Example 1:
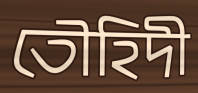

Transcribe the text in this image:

তৌহিদী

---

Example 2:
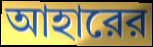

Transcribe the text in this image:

আহারের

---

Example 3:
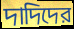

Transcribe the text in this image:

দাদিদের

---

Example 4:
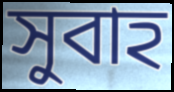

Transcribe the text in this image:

সুবাহ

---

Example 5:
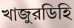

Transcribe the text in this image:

খাজুরডিহি